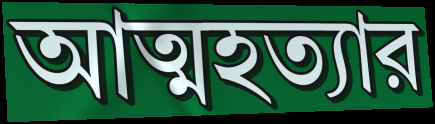
আত্মহত্যার